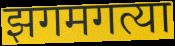
झगमगत्या